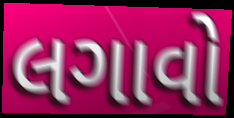
લગાવો